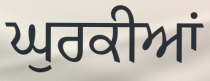
ਘੁਰਕੀਆਂ